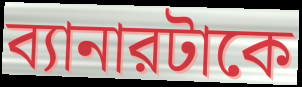
ব্যানারটাকে